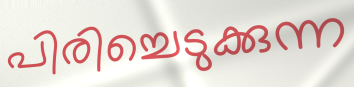
പിരിച്ചെടുക്കുന്ന